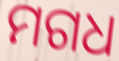
ମଗଧ